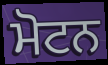
ਮੋਟਨ